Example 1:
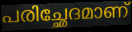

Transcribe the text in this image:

പരിച്ഛേദമാണ്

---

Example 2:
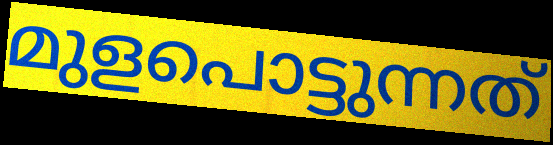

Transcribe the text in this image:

മുളപൊട്ടുന്നത്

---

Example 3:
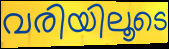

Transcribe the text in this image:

വരിയിലൂടെ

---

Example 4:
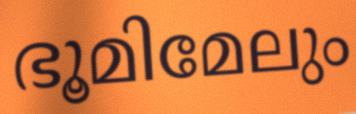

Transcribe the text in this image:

ഭൂമിമേലും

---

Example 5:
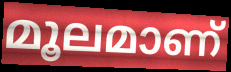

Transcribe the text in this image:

മൂലമാണ്